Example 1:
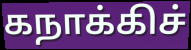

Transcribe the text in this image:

கநாக்கிச்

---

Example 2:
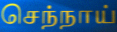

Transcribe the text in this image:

செந்நாய்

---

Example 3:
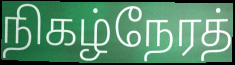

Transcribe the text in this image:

நிகழ்நேரத்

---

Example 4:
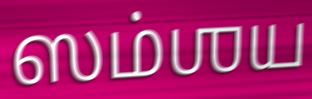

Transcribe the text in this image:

ஸம்ஶய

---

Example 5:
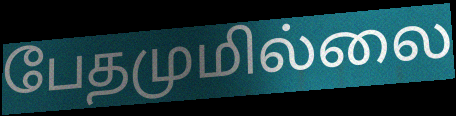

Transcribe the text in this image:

பேதமுமில்லை